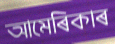
আমেৰিকাৰ